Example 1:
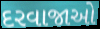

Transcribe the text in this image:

દરવાજાઓ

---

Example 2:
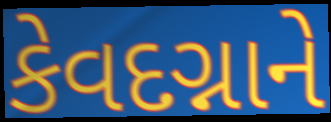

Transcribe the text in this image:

કેવદગ્નાને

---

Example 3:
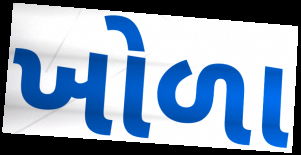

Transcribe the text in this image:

ખોળા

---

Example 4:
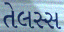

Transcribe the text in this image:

તેલસ્સ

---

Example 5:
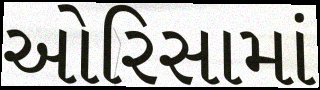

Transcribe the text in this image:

ઓરિસામાં